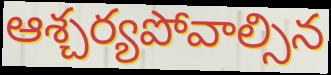
ఆశ్చర్యపోవాల్సిన